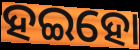
ହଇହୋ